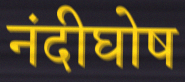
नंदीघोष